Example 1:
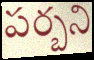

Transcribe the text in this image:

పర్బని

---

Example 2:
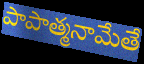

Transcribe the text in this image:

పాపాత్మనామేతే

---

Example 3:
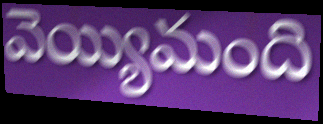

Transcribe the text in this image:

వెయ్యిమంది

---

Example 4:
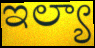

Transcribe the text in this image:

ఇల్యా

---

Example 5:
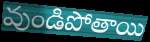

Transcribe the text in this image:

వుండిపోతాయి